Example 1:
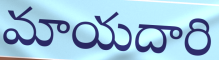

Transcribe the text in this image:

మాయదారి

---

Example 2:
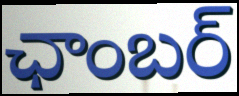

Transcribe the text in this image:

ఛాంబర్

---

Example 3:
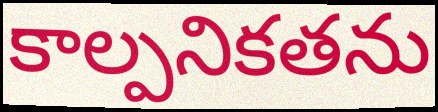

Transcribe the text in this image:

కాల్పనికతను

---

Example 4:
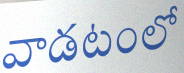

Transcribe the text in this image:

వాడటంలో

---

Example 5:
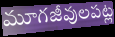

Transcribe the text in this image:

మూగజీవులపట్ల